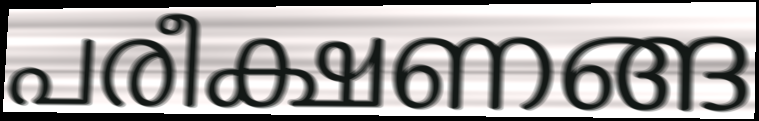
പരീക്ഷണങ്ങ